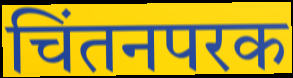
चिंतनपरक